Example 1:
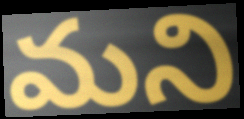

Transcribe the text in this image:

మని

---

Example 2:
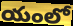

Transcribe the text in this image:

యంలో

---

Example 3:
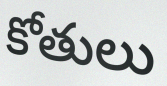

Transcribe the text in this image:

కోతులు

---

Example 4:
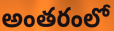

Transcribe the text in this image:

అంతరంలో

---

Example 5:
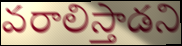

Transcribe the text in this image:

వరాలిస్తాడని